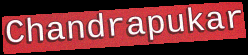
Chandrapukar